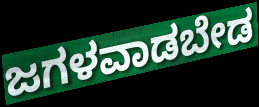
ಜಗಳವಾಡಬೇಡ